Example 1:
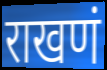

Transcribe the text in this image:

राखणं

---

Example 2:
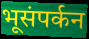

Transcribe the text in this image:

भूसंपर्कन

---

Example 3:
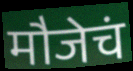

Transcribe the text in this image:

मौजेचं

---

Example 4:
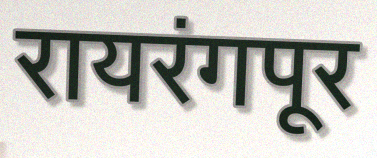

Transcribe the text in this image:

रायरंगपूर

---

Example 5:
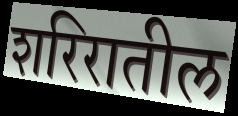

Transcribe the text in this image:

शरिरातील